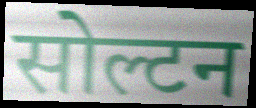
सोल्टन